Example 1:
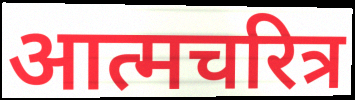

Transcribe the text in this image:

आत्मचरित्र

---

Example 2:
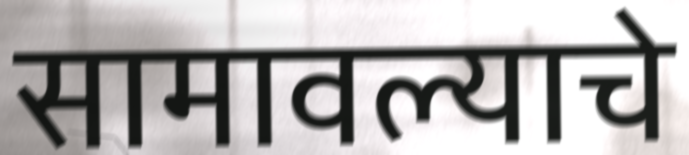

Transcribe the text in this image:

सामावल्याचे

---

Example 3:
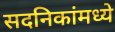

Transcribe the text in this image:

सदनिकांमध्ये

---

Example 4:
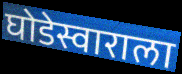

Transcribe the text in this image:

घोडेस्वाराला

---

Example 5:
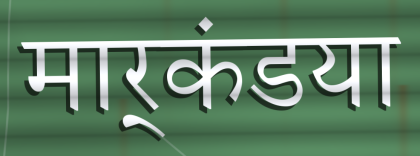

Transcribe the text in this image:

मार्कंडया